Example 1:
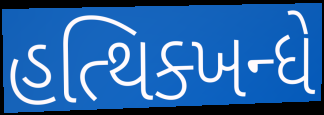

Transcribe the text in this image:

હત્થિક્ખન્ધે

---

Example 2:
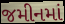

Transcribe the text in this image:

જમીનમાં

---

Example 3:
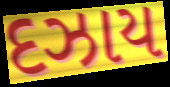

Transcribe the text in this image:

દઝાય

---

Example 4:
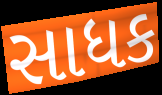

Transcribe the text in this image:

સાધક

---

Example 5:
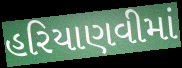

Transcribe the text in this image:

હરિયાણવીમાં